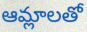
ఆమ్లాలతో